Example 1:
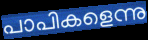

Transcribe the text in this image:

പാപികളെന്നു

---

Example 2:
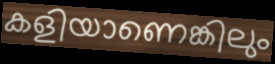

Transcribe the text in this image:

കളിയാണെങ്കിലും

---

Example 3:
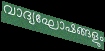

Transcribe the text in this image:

വാദ്യഘോഷങ്ങളും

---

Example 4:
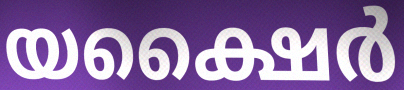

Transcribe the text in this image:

യക്ഷൈർ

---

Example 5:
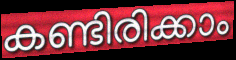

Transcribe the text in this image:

കണ്ടിരിക്കാം